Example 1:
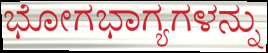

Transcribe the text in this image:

ಭೋಗಭಾಗ್ಯಗಳನ್ನು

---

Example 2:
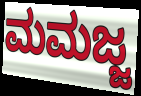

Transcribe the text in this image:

ಮಮಜ್ಜ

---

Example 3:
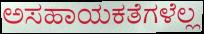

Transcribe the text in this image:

ಅಸಹಾಯಕತೆಗಳೆಲ್ಲ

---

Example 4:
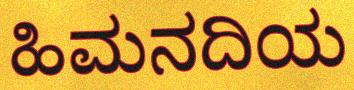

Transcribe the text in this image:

ಹಿಮನದಿಯ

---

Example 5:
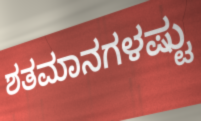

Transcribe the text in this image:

ಶತಮಾನಗಳಷ್ಟು